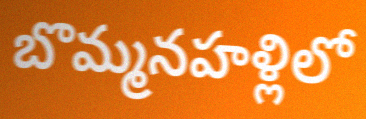
బొమ్మనహళ్లిలో